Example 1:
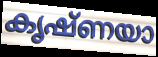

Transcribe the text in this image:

കൃഷ്ണയാ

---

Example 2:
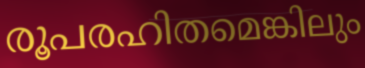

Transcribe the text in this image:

രൂപരഹിതമെങ്കിലും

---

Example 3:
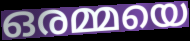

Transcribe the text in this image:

ഒരമ്മയെ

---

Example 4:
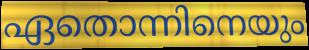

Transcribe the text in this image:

ഏതൊന്നിനെയും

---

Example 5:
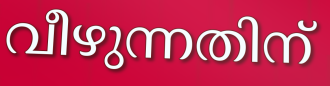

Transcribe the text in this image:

വീഴുന്നതിന്